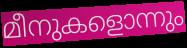
മീനുകളൊന്നും